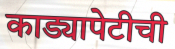
काड्यापेटीची